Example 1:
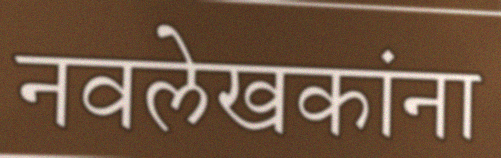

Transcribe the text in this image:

नवलेखकांना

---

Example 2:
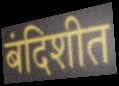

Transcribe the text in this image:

बंदिशीत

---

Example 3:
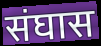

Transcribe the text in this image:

संघास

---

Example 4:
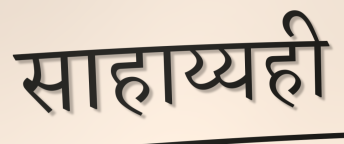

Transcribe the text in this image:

साहाय्यही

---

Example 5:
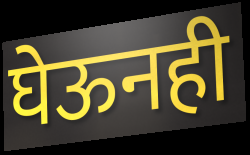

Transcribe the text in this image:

घेऊनही